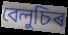
বেলুচিৰ